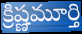
క్రిష్ణమూర్తి